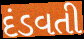
દંડવતી